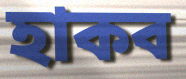
হাকব